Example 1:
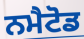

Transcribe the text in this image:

ਨਮੈਟੋਡ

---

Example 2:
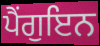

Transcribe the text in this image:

ਪੈਂਗੁਇਨ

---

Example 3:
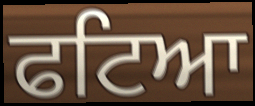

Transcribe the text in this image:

ਫਟਿਆ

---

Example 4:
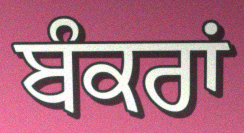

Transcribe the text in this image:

ਬੰਕਰਾਂ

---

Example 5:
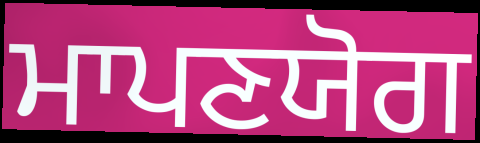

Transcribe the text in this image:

ਮਾਪਣਯੋਗ